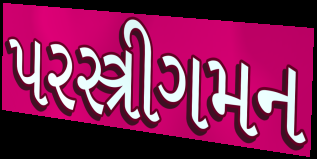
પરસ્ત્રીગમન